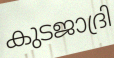
കുടജാദ്രി